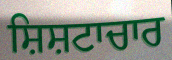
ਸ਼ਿਸ਼ਟਾਚਾਰ